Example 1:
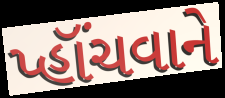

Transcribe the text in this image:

પ્હૉંચવાને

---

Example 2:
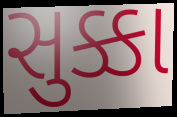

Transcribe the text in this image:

સુક્કા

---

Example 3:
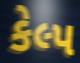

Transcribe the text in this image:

કેલ્પ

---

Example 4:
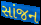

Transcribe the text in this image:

સાંજન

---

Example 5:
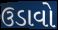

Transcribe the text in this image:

ઉડાવો